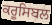
ਕਰੂਸਿਬਲ